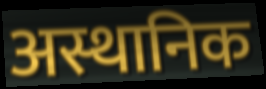
अस्थानिक